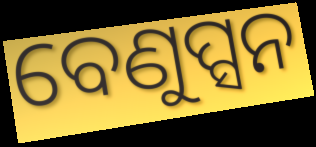
ବେଣୁପ୍ସନ